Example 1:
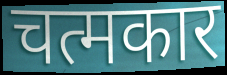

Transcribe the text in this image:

चत्मकार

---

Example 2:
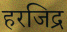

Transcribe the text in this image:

हरजिद्र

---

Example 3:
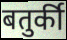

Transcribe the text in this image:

बतुर्की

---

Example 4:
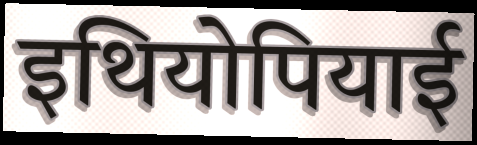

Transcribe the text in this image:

इथियोपियाई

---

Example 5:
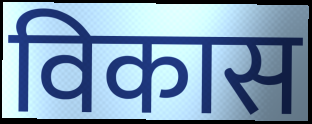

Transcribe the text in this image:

विकास